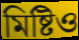
মিষ্টিও